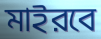
মাইরবে